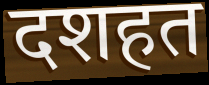
दशहत